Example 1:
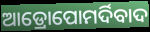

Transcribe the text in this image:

ଆଡ୍ରୋପୋମର୍ଦିବାଦ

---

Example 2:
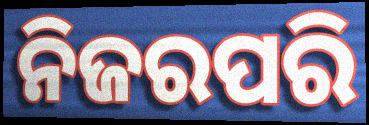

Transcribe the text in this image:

ନିଜରପରି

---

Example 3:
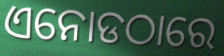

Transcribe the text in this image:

ଏନୋଡଠାରେ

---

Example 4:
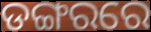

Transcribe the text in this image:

ଡଙ୍ଗରରେ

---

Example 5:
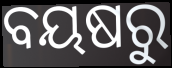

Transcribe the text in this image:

ବୟଷରୁ